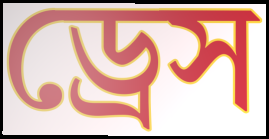
ড্রেস